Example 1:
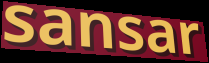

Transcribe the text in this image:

sansar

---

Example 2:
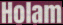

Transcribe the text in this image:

Holam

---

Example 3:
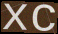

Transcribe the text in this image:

xc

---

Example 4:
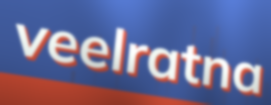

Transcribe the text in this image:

veelratna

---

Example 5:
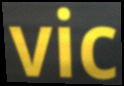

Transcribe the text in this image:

vic